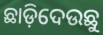
ଛାଡ଼ିଦେଉଛୁ